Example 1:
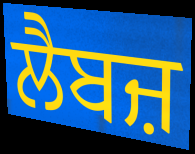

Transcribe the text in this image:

ਲੈਬਜ਼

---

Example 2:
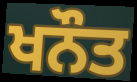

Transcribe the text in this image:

ਖਨੌਤ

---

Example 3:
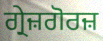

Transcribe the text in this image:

ਗ੍ਰੇਜ਼ਗੋਰਜ਼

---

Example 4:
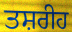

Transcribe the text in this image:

ਤਸ਼ਰੀਹ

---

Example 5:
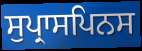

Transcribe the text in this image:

ਸੁਪ੍ਰਾਸਪਿਨਸ